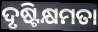
ଦୃଷ୍ଟିକ୍ଷମତା